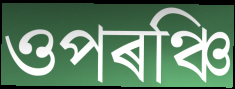
ওপৰঞ্চি